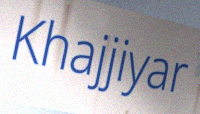
Khajjiyar